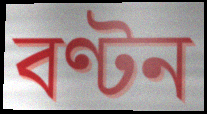
বণ্টন